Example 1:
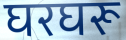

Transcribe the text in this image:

घरघरू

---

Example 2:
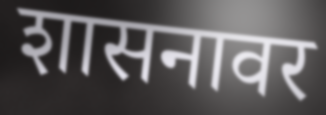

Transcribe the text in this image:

शासनावर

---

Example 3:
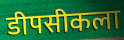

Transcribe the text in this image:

डीपसीकला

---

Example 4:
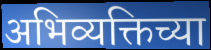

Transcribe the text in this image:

अभिव्यक्तिच्या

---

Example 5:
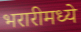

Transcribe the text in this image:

भरारीमध्ये